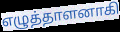
எழுத்தாளனாகி